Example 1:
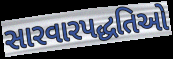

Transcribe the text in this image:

સારવારપદ્ધતિઓ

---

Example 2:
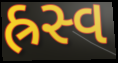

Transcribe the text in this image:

હ્રસ્વ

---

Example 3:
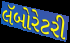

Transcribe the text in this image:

લૅબોરેટરી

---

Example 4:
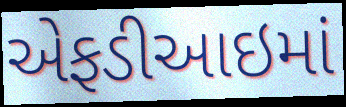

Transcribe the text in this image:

એફડીઆઇમાં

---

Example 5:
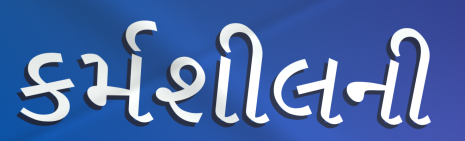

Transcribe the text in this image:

કર્મશીલની